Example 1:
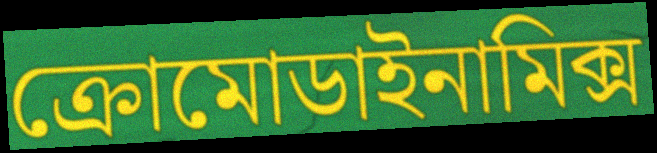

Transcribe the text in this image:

ক্রোমোডাইনামিক্স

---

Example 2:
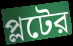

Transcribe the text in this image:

প্লটের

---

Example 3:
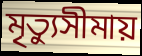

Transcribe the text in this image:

মৃত্যুসীমায়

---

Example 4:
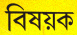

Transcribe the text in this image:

বিষয়ক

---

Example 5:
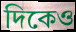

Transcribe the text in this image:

দিকেও